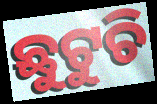
ଛୁଟୁଚି